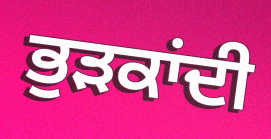
ਭੁੜਕਾਂਦੀ